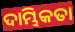
ଦାମ୍ଭିକତା